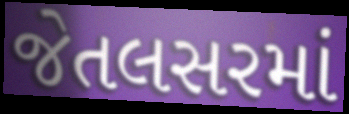
જેતલસરમાં